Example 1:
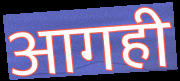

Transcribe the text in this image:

आगही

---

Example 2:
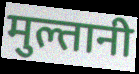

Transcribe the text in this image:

मुल्‍तानी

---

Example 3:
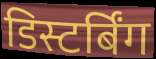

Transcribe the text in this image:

डिस्टर्बिंग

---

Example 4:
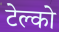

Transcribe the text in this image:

टेल्को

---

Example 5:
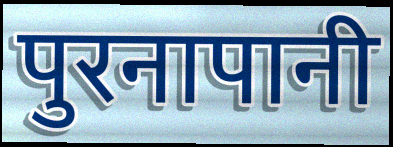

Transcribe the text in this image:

पुरनापानी